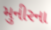
મુનીરના